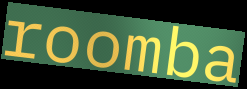
roomba